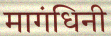
मागंधिनी